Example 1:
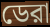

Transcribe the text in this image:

ডেরা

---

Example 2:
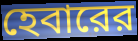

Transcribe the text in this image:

হেবারের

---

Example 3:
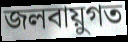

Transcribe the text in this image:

জলবায়ুগত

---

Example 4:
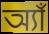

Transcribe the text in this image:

অ্যাঁ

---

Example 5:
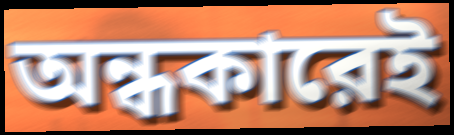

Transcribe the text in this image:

অন্ধকারেই